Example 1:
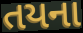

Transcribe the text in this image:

તયના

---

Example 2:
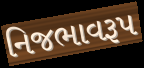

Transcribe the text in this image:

નિજભાવરૂપ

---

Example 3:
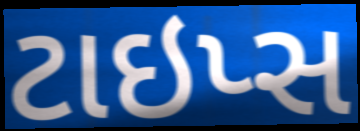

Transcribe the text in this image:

ટાઇપ્સ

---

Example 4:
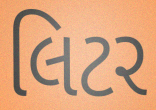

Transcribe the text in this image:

લિટર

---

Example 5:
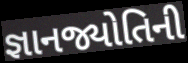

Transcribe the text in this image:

જ્ઞાનજ્યોતિની